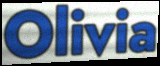
Olivia